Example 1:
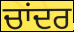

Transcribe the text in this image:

ਚਾਂਦਰ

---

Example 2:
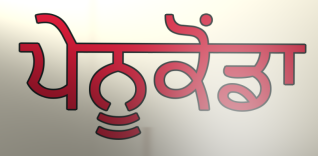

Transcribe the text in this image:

ਪੇਨੂਕੋਂਡਾ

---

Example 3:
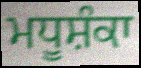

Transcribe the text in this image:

ਮਧੂਸ਼ੰਕਾ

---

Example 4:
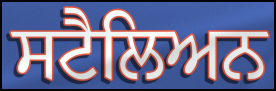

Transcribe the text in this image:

ਸਟੈਲਿਅਨ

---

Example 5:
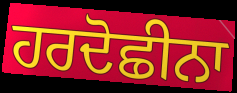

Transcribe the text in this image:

ਹਰਦੋਛੀਨਾ